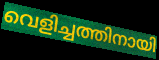
വെളിച്ചത്തിനായി